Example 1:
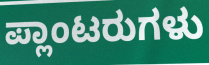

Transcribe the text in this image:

ಪ್ಲಾಂಟರುಗಳು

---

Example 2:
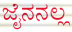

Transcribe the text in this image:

ಜೈನನಲ್ಲ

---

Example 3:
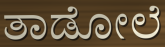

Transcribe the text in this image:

ತಾಡೋಲೆ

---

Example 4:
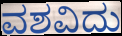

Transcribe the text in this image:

ವಶವಿದು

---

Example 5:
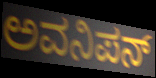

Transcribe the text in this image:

ಅವನಿಪನ್